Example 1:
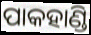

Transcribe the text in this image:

ପାକହାଣ୍ଡି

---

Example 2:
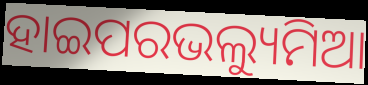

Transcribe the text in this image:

ହାଇପରଭଲ୍ୟୁମିଆ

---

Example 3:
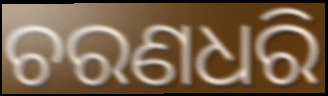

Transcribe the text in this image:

ଚରଣଧରି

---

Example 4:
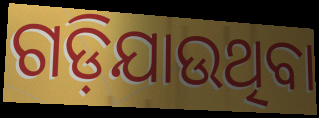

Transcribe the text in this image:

ଗଡ଼ିଯାଉଥିବା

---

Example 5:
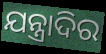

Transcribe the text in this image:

ଯନ୍ତ୍ରାଦିର